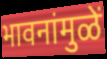
भावनांमुळें